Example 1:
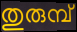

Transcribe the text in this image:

തുരുമ്പ്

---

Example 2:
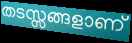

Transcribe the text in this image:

തടസ്സങ്ങളാണ്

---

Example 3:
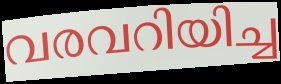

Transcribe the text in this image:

വരവറിയിച്ച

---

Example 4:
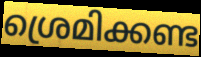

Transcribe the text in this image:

ശ്രെമിക്കണ്ട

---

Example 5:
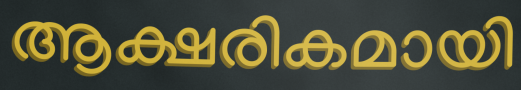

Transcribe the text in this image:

ആക്ഷരികമായി